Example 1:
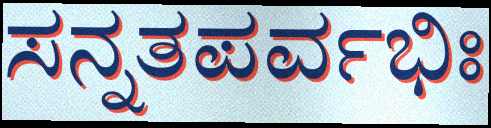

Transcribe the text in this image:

ಸನ್ನತಪರ್ವಭಿಃ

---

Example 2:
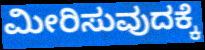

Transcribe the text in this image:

ಮೀರಿಸುವುದಕ್ಕೆ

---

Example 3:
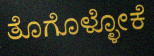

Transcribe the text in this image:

ತೊಗೊಳ್ಳೋಕೆ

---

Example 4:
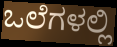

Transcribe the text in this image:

ಒಲೆಗಳಲ್ಲಿ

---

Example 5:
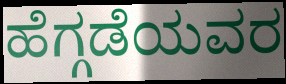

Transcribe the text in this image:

ಹೆಗ್ಗಡೆಯವರ